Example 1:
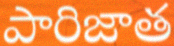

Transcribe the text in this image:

పారిజాత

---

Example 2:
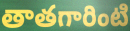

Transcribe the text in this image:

తాతగారింటి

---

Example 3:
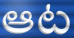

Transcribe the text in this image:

ఆట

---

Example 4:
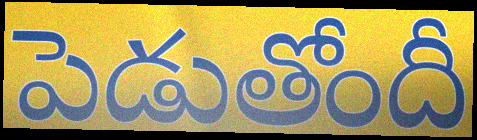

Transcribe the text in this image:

పెడుతోందీ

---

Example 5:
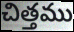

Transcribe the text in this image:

చిత్తము